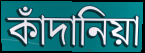
কাঁদানিয়া